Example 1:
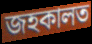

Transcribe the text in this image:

জহকালত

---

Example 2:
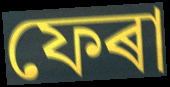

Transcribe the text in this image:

ফেৰা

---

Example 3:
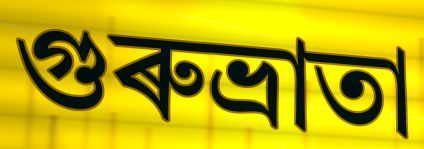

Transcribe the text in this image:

গুৰুভ্ৰাতা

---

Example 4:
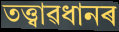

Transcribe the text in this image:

তত্ত্বাৱধানৰ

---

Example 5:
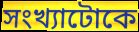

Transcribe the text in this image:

সংখ্যাটোকে